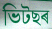
ভিটছৰ